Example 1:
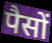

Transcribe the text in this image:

पैसों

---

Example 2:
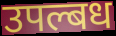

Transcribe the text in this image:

उपल्‍बध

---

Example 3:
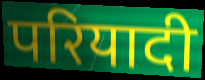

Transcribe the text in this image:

परियादी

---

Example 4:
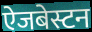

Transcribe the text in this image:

ऐजबेस्टन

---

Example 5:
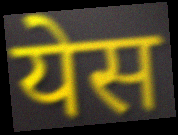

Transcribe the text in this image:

येस